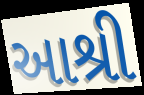
આશ્રી